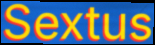
Sextus